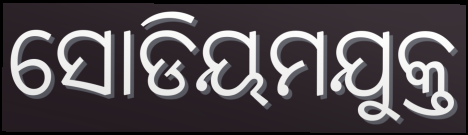
ସୋଡିୟମଯୁକ୍ତ